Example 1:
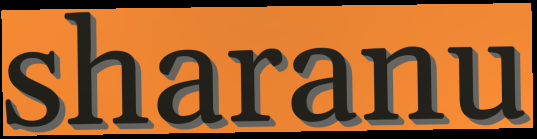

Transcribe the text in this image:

sharanu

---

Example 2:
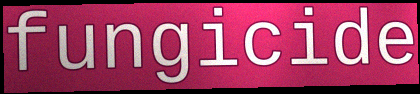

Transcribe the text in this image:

fungicide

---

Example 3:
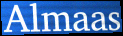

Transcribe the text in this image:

Almaas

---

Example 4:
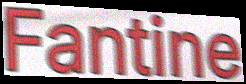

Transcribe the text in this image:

Fantine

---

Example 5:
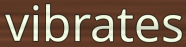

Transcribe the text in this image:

vibrates